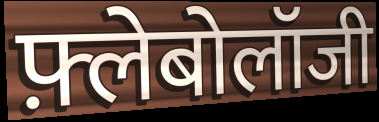
फ़्लेबोलॉजी